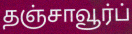
தஞ்சாவூர்ப்